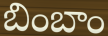
బింబాం